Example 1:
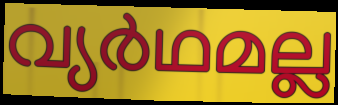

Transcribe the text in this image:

വ്യർഥമല്ല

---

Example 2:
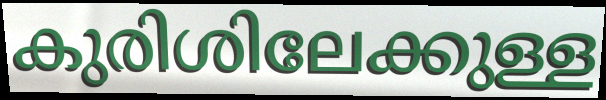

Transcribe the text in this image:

കുരിശിലേക്കുള്ള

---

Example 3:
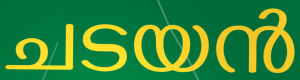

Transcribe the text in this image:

ചടയൻ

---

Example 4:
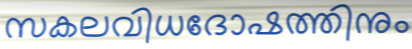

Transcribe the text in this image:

സകലവിധദോഷത്തിനും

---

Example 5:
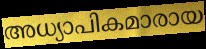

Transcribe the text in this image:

അധ്യാപികമാരായ